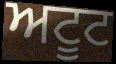
ਅਟੂਟ